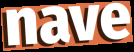
nave